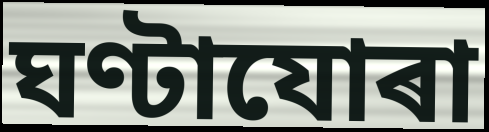
ঘণ্টাযোৰা